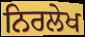
ਨਿਰਲੇਖ